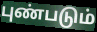
புண்படும்